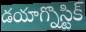
డయాగ్నొస్టిక్